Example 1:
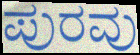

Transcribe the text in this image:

ಪುರವು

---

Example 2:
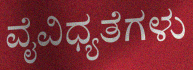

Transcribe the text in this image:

ವೈವಿಧ್ಯತೆಗಳು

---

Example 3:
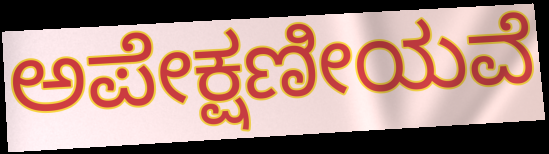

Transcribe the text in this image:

ಅಪೇಕ್ಷಣೀಯವೆ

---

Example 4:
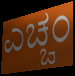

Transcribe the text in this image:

ಎಚ್ಚಂ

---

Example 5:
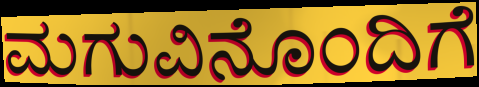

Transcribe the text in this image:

ಮಗುವಿನೊಂದಿಗೆ